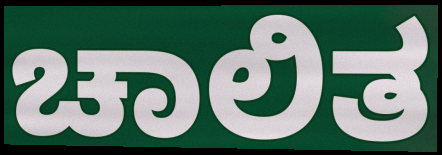
ಚಾಲಿತ